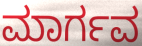
ಮಾರ್ಗವ